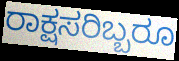
ರಾಕ್ಷಸರಿಬ್ಬರೂ